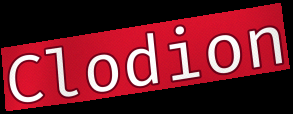
Clodion